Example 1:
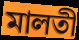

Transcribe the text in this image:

মালতী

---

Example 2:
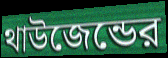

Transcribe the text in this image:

থাউজেন্ডের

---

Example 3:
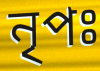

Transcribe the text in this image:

নৃপঃ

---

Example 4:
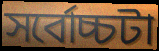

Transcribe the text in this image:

সর্বোচ্চটা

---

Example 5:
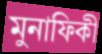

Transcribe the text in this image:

মুনাফিকী